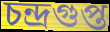
চন্দ্রগুপ্ত